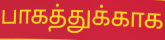
பாகத்துக்காக